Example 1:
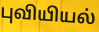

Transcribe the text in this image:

புவியியல்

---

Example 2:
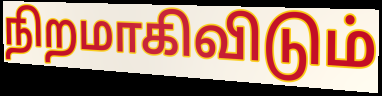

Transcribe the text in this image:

நிறமாகிவிடும்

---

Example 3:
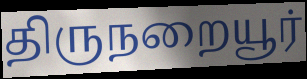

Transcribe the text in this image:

திருநறையூர்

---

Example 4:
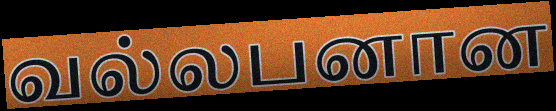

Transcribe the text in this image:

வல்லபனான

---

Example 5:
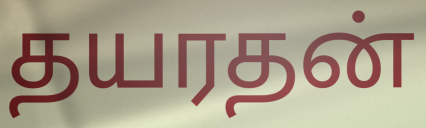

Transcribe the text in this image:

தயரதன்